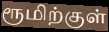
ரூமிற்குள்